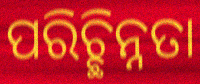
ପରିଚ୍ଛିନ୍ନତା